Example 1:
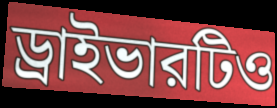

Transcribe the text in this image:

ড্রাইভারটিও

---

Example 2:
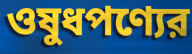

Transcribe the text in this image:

ওষুধপণ্যের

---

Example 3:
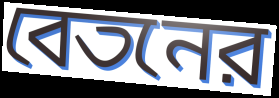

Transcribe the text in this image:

বেতনের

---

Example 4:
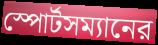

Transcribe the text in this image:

স্পোর্টসম্যানের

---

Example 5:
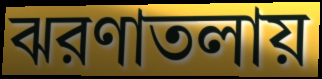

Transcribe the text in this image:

ঝরণাতলায়